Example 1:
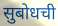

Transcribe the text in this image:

सुबोधची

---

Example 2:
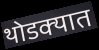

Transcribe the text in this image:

थोडक्‍यात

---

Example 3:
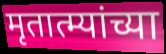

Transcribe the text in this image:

मृतात्म्यांच्या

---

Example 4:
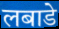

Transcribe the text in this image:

लबाडे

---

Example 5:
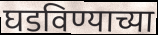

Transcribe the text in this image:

घडविण्याच्या